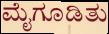
ಮೈಗೂಡಿತು